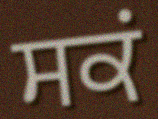
ਸਕਂ